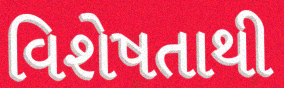
વિશેષતાથી